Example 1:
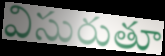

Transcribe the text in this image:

విసురుతూ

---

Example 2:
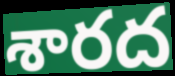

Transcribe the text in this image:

శారద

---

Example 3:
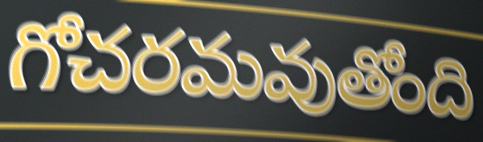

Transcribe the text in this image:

గోచరమవుతోంది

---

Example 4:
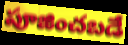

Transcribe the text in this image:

పూజించబడే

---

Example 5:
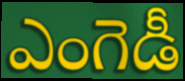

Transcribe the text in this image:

ఎంగెడీ